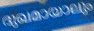
ദുഖമായാലും